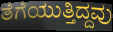
ತೆಗೆಯುತ್ತಿದ್ದವು